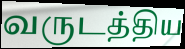
வருடத்திய